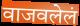
वाजवलेलं